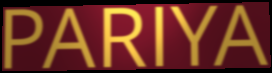
PARIYA